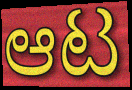
ಆಟ